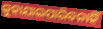
କୁହାଯାଇପାରିବନାହିଁ